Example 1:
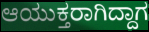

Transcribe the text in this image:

ಆಯುಕ್ತರಾಗಿದ್ದಾಗ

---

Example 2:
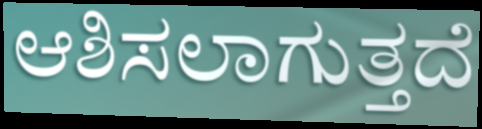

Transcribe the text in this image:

ಆಶಿಸಲಾಗುತ್ತದೆ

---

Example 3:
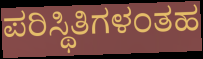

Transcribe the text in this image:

ಪರಿಸ್ಥಿತಿಗಳಂತಹ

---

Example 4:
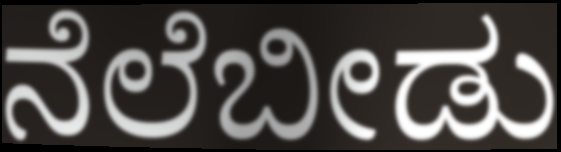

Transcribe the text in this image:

ನೆಲೆಬೀಡು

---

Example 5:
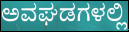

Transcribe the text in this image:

ಅವಘಡಗಳಲ್ಲಿ